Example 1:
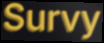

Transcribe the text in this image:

Survy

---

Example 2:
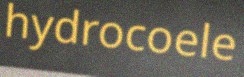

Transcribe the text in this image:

hydrocoele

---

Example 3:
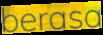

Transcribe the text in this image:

berasa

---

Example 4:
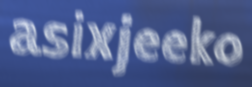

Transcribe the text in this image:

asixjeeko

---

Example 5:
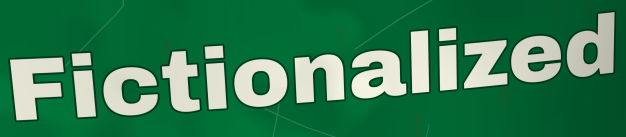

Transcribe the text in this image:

Fictionalized